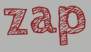
zap